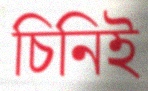
চিনিই